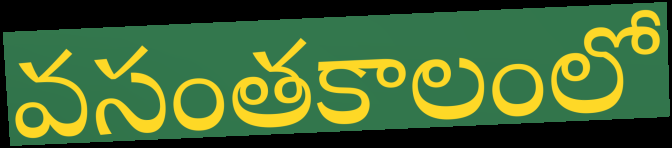
వసంతకాలంలో